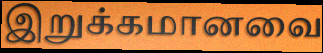
இறுக்கமானவை